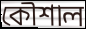
কৌশাল